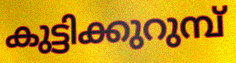
കുട്ടിക്കുറുമ്പ്